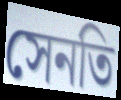
সেনতি